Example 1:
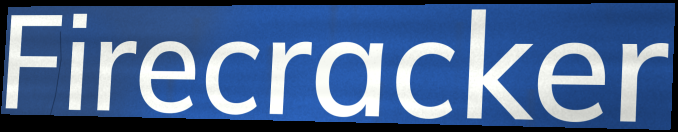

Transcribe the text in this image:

Firecracker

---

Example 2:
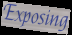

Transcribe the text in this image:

Exposing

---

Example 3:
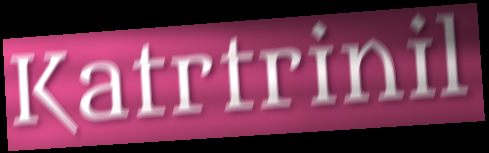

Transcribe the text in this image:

Katrtrinil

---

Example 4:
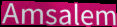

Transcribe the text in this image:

Amsalem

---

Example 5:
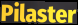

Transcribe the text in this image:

Pilaster